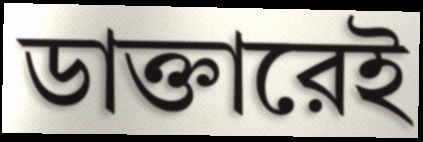
ডাক্তারেই